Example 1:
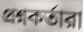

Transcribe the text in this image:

প্রশ্নকর্তারা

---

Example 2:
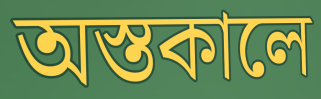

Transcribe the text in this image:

অস্তকালে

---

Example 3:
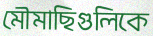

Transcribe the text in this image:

মৌমাছিগুলিকে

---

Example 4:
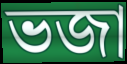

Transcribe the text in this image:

ভজা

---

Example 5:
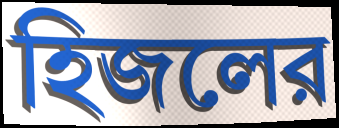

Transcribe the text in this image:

হিজলের